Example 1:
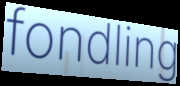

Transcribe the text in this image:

fondling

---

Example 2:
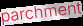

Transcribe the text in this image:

parchment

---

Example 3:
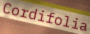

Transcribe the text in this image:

Cordifolia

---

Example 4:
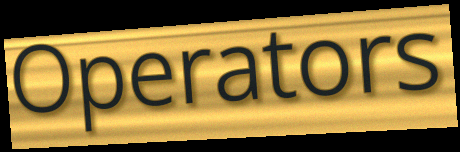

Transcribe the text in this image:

Operators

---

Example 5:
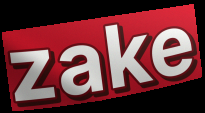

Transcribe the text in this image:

zake